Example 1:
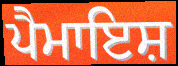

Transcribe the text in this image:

ਪੈਮਾਇਸ਼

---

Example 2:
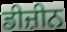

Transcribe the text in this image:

ਡੀਜ਼ੀਨ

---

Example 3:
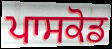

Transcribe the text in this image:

ਪਾਸਕੋਡ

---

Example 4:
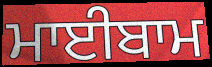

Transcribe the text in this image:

ਮਾਈਬਾਮ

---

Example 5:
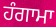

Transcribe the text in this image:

ਹੰਗਾਮਾ